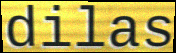
dilas